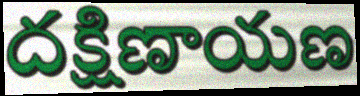
దక్షిణాయణ